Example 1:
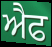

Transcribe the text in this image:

ਐਫ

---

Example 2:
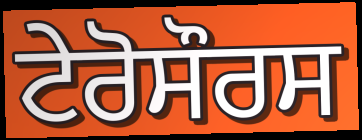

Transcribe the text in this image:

ਟੇਰੋਸੌਰਸ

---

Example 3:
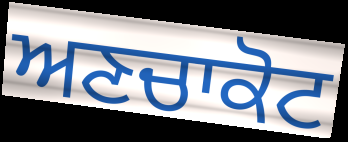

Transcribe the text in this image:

ਅਣਚਾਕੋਟ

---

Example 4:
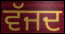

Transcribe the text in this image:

ਵੱਜਦ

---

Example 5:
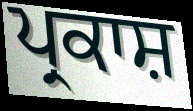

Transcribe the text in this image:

ਪ੍ਰਕਾਸ਼